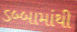
ડબ્બામાંથી